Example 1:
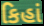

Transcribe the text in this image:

કિહાં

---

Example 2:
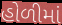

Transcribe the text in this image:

હોળીમાં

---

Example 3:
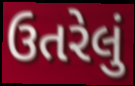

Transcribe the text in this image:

ઉતરેલું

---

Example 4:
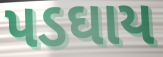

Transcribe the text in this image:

પડઘાય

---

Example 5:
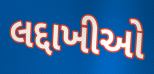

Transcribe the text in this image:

લદ્દાખીઓ